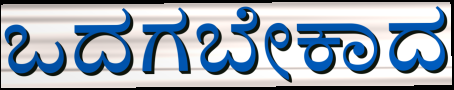
ಒದಗಬೇಕಾದ